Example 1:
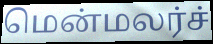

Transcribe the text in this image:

மென்மலர்ச்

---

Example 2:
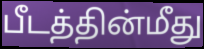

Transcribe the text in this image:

பீடத்தின்மீது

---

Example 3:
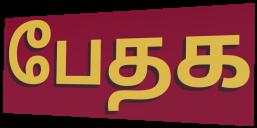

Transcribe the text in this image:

பேதக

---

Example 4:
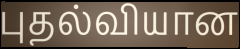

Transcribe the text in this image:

புதல்வியான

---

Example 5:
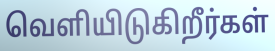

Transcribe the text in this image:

வெளியிடுகிறீர்கள்